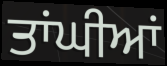
ਤਾਂਘੀਆਂ